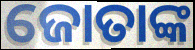
ଜୋତାଙ୍କ